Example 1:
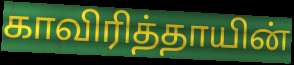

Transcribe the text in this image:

காவிரித்தாயின்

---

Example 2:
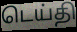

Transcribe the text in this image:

டெய்தி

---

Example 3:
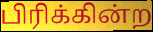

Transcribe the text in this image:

பிரிக்கின்ற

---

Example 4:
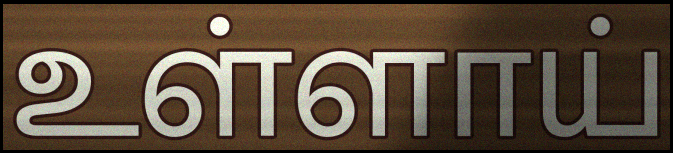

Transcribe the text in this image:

உள்ளாய்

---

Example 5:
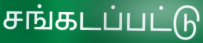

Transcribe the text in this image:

சங்கடப்பட்டு